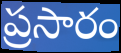
ప్రసారం